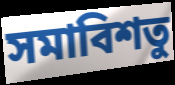
সমাবিশতু